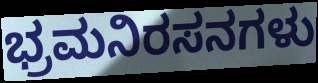
ಭ್ರಮನಿರಸನಗಳು